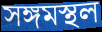
সঙ্গমস্থল